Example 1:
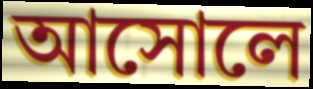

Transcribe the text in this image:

আসোলে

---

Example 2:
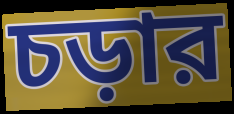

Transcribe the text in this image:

চড়ার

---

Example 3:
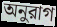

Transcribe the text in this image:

অনুরাগ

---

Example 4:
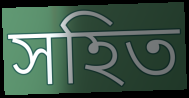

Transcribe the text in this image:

সহিত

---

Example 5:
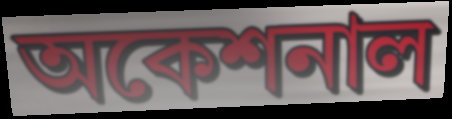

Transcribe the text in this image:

অকেশনাল